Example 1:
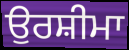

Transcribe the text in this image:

ਉਰਸ਼ੀਮਾ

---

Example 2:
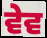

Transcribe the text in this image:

ਵੇਵ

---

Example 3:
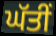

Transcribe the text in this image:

ਘੱਤੀਂ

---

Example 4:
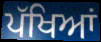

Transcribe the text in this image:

ਪੱਖਿਆਂ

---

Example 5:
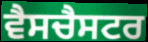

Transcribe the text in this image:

ਵੈਸਚੈਸਟਰ